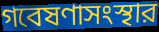
গবেষণাসংস্থার